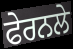
ਫੇਰਨਲੇ